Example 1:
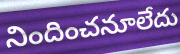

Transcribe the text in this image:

నిందించనూలేదు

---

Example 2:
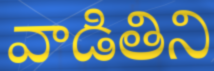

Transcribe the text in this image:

వాడితిని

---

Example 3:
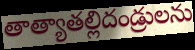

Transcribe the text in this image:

తాత్యాతల్లిదండ్రులను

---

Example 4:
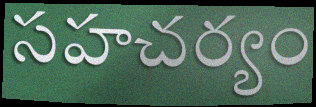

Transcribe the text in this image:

సహచర్యం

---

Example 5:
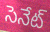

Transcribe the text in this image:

సెనేట్